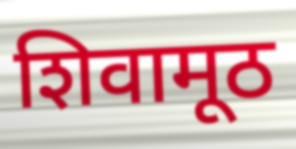
शिवामूठ